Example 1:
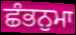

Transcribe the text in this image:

ਛੰਭਨੁਮਾ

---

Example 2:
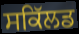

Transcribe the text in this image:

ਸਕਿੱਲਡ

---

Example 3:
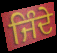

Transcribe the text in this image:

ਜਿੰਦੇ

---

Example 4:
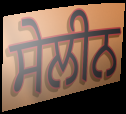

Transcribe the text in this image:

ਸੇਲੀਨ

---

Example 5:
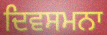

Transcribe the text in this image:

ਦਿਵਸਮਨਾ